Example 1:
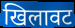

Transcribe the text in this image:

खिलावट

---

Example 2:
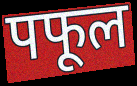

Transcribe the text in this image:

पफूल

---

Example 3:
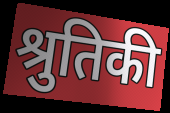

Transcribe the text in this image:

श्रुतिकी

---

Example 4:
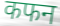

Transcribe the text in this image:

कफन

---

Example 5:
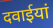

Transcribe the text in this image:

दवाईयां